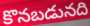
కొనబడునది